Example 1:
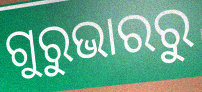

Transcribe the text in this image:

ଗୁରୁଭାରରୁ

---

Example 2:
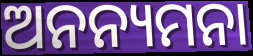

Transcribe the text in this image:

ଅନନ୍ୟମନା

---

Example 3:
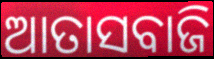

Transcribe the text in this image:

ଆତାସବାଜି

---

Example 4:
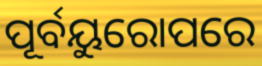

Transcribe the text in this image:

ପୂର୍ବୟୁରୋପରେ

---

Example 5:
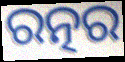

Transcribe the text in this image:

ରତ୍ନର